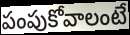
పంపుకోవాలంటే